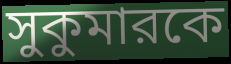
সুকুমারকে